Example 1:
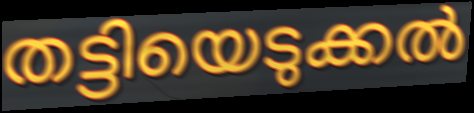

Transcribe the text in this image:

തട്ടിയെടുക്കൽ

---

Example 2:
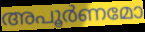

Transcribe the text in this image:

അപൂർണമോ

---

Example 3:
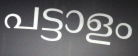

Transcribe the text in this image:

പട്ടാളം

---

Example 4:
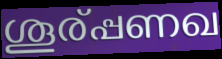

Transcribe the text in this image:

ശൂര്പ്പണഖ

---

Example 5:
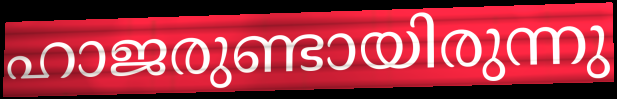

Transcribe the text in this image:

ഹാജരുണ്ടായിരുന്നു